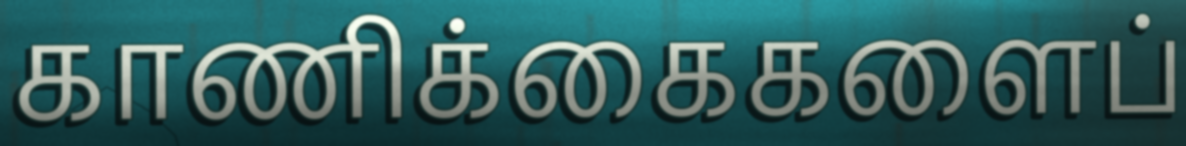
காணிக்கைகளைப்